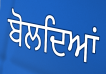
ਬੋਲਦਿਆਂ